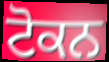
ਟੋਕਨ